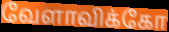
வேளாவிக்கோ